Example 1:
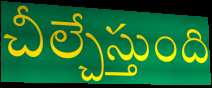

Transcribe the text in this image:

చీల్చేస్తుంది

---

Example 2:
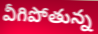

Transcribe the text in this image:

వీగిపోతున్న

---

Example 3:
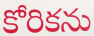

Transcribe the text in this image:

కోరికను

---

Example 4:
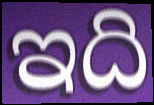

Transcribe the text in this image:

ఇది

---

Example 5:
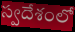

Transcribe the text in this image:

స్వదేశంలో